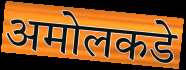
अमोलकडे